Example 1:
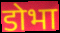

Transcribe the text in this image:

डोभा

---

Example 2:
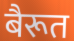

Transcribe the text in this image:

बैरूत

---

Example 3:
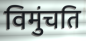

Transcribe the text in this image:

विमुंचति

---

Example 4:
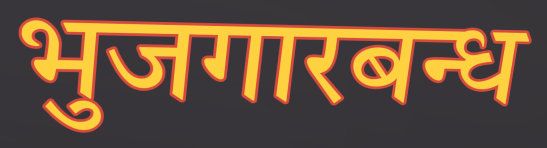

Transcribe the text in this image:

भुजगारबन्ध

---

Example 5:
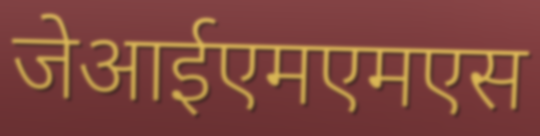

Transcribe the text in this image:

जेआईएमएमएस